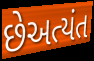
છેઅત્યંત